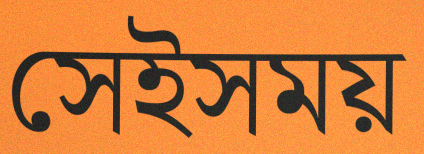
সেইসময়